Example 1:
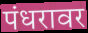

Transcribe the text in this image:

पंधरावर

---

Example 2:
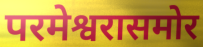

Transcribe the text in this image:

परमेश्वरासमोर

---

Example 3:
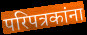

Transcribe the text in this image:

परिपत्रकांना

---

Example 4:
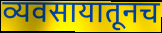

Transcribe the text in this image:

व्यवसायातूनच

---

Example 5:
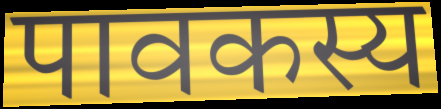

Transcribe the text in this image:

पावकस्य